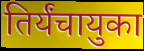
तिर्यंचायुका